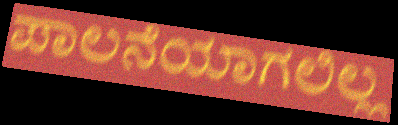
ಪಾಲನೆಯಾಗಲಿಲ್ಲ